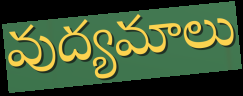
వుద్యమాలు